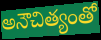
అనౌచిత్యంతో